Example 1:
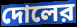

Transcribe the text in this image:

দোলের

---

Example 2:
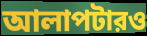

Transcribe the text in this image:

আলাপটারও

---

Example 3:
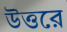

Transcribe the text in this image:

উত্তরে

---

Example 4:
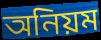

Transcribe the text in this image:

অনিয়ম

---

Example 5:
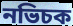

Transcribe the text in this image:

নভিচক